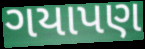
ગયાપણ